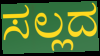
ಸಲ್ಲದ